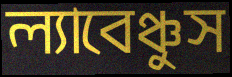
ল্যাবেঞ্চুস